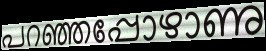
പറഞ്ഞപ്പോഴാണു